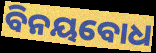
ବିନୟବୋଧ